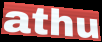
athu